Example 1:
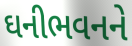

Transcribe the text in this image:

ઘનીભવનને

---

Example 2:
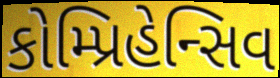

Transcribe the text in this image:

કોમ્પ્રિહેન્સિવ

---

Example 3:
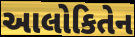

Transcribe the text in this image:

આલોકિતેન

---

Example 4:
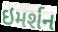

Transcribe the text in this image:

ઇમર્શન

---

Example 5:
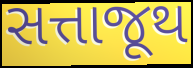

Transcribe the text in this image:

સત્તાજૂથ